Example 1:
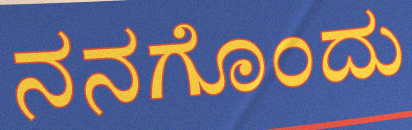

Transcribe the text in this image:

ನನಗೊಂದು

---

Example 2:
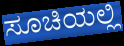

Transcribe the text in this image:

ಸೂಚಿಯಲ್ಲಿ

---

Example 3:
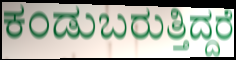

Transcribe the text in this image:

ಕಂಡುಬರುತ್ತಿದ್ದರೆ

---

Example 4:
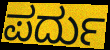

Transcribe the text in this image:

ಪರ್ದು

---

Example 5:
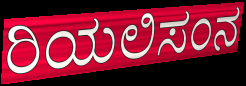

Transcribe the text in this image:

ರಿಯಲಿಸಂನ